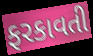
ફરકાવતી